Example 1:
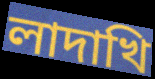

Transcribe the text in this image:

লাদাখি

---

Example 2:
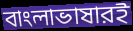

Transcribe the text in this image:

বাংলাভাষারই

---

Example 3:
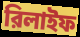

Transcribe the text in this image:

রিলাইফ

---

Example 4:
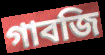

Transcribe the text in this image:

গাবজি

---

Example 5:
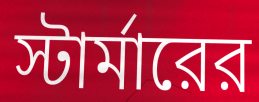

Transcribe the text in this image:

স্টার্মারের